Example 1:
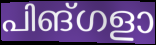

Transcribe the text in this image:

പിങ്ഗളാ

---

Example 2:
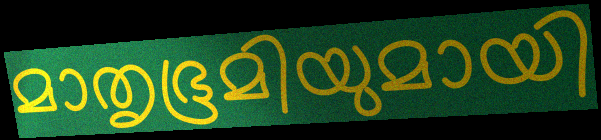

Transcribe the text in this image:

മാതൃഭൂമിയുമായി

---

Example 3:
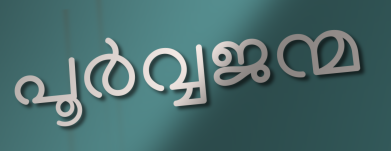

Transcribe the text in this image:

പൂർവ്വജന്മ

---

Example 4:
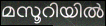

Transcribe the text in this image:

മസൂറിയിൽ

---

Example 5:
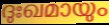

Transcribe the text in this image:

ദുഃഖമായും